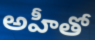
అహీతో